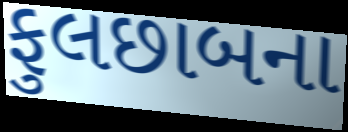
ફુલછાબના